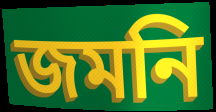
জমনি